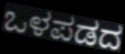
ಒಳಪಡದ